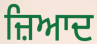
ਜ਼ਿਆਦ